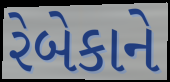
રેબેકાને